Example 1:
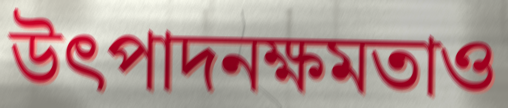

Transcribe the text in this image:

উৎপাদনক্ষমতাও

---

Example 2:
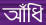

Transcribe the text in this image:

আঁধি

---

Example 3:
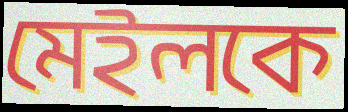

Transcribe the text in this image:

মেইলকে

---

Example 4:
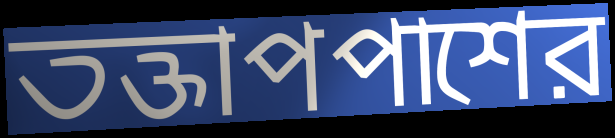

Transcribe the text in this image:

তক্তাপপাশের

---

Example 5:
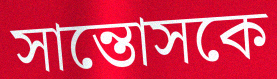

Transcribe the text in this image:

সান্তোসকে